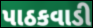
પાઠકવાડી